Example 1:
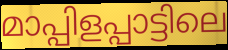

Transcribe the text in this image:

മാപ്പിളപ്പാട്ടിലെ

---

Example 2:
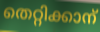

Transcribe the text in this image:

തെറ്റിക്കാന്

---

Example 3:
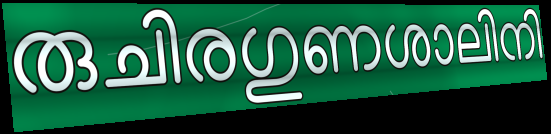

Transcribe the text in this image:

രുചിരഗുണശാലിനി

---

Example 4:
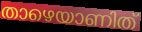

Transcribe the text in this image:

താഴെയാണിത്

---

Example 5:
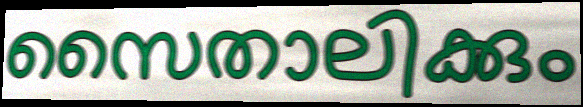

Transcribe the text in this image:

സൈതാലിക്കും